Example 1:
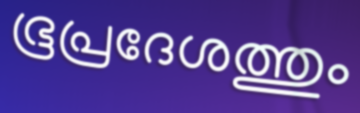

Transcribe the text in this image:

ഭൂപ്രദേശത്തും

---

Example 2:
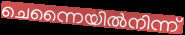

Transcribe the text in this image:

ചെന്നൈയിൽനിന്ന്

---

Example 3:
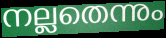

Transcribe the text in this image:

നല്ലതെന്നും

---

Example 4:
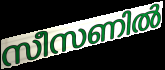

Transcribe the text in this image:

സീസണിൽ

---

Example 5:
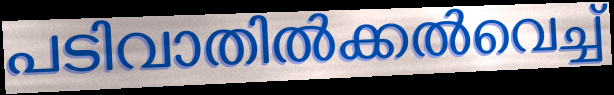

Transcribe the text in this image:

പടിവാതിൽക്കൽവെച്ച്